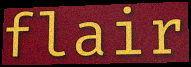
flair